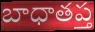
బాధాతప్త